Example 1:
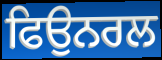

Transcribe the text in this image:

ਫਿਉਨਰਲ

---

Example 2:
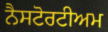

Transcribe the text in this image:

ਨੈਸਟੋਰਟੀਅਮ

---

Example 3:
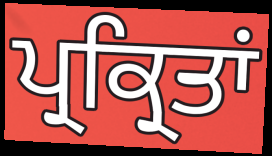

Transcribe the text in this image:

ਪ੍ਰਕ੍ਰਿਤਾਂ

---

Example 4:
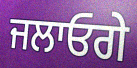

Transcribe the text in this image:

ਜਲਾਓਗੇ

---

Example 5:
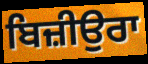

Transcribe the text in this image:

ਬਿਜ਼ੀਉਰਾ